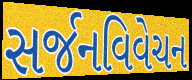
સર્જનવિવેચન